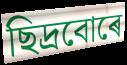
ছিদ্ৰবোৰে